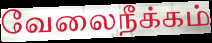
வேலைநீக்கம்